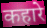
कहारे